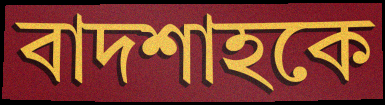
বাদশাহকে